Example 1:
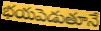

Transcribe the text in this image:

భయపెడుతూనే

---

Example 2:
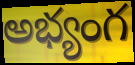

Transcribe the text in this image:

అభ్యంగ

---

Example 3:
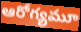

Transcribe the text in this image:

ఆరోగ్యమూ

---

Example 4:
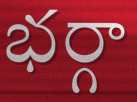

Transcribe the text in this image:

భర్గా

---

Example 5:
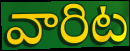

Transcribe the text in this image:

వారిట